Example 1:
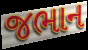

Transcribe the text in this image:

જભાન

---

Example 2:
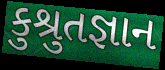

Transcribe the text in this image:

કુશ્રુતજ્ઞાન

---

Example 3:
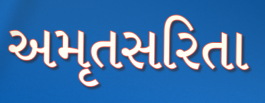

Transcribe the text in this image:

અમૃતસરિતા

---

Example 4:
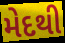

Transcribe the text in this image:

મેદથી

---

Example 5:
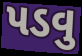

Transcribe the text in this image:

પડવુ